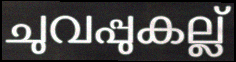
ചുവപ്പുകല്ല്